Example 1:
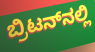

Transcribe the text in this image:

ಬ್ರಿಟನ್‌ನಲ್ಲಿ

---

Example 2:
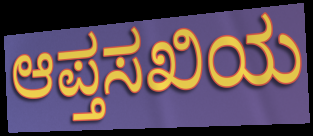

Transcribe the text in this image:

ಆಪ್ತಸಖಿಯ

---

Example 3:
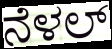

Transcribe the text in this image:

ನೆಳಲ್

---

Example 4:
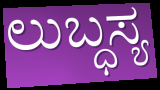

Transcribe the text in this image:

ಲುಬ್ಧಸ್ಯ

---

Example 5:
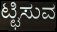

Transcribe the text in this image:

ಟ್ಟಿಸುವ